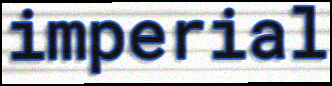
imperial